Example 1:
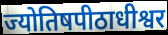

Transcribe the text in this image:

ज्योतिषपीठाधीश्वर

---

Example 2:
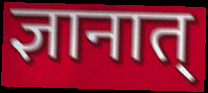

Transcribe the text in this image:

ज्ञानात्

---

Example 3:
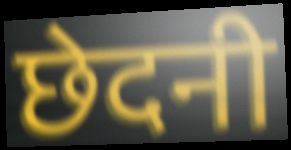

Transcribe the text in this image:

छेदनी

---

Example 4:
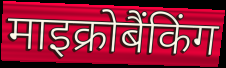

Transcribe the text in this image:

माइक्रोबैंकिंग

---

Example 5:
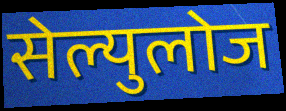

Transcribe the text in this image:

सेल्युलोज